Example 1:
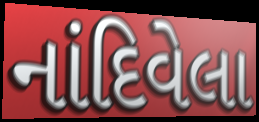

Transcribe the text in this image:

નાંદિવેલા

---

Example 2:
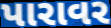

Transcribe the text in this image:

પારાવર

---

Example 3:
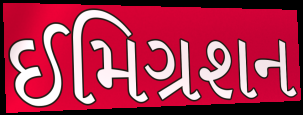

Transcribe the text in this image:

ઈમિગ્રશન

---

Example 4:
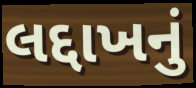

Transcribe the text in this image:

લદ્દાખનું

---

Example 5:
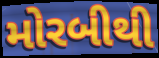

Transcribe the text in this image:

મોરબીથી